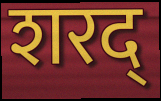
शरद्